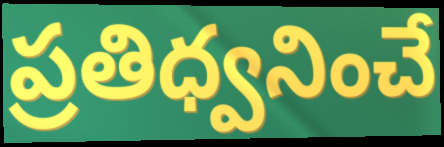
ప్రతిధ్వనించే